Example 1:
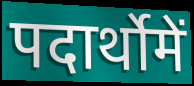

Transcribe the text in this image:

पदार्थोमें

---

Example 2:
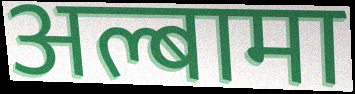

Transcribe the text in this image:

अल्बामा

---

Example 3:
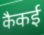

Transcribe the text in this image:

कैकई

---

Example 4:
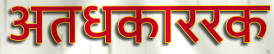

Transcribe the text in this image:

अतधकाररक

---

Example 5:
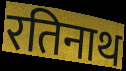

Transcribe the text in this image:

रतिनाथ